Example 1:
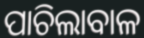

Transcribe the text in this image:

ପାଚିଲାବାଳ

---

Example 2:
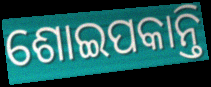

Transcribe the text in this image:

ଶୋଇପକାନ୍ତି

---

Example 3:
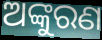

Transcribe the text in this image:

ଅଙ୍କୁରଣ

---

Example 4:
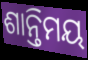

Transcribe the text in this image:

ଶାନ୍ତିମୟ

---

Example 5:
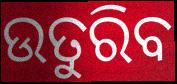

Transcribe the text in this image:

ଉତୁରିବ